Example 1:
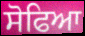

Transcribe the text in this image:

ਸੋਫਿਆ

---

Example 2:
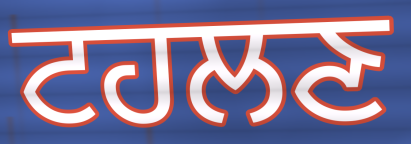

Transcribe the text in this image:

ਟਹਲਣ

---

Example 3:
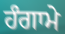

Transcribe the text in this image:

ਹੰਗਾਮੇ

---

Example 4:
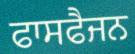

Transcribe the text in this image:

ਫਾਸਫੈਜਨ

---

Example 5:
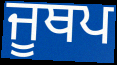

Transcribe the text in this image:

ਜੂਥਪ